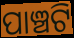
ପାଞ୍ଚଟି